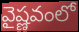
వైష్ణవంలో